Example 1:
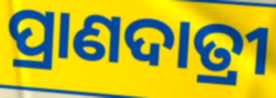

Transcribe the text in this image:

ପ୍ରାଣଦାତ୍ରୀ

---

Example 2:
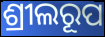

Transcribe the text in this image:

ଶ୍ରୀଲରୂପ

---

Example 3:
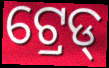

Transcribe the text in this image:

ଟ୍ରେଡ୍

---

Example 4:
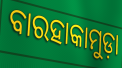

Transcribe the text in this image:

ବାରହାକାମୁଡ଼ା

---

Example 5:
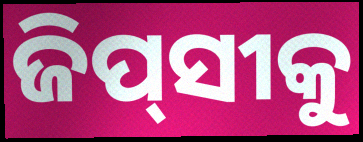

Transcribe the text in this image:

ଜିପ୍‌ସୀକୁ